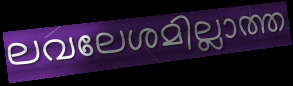
ലവലേശമില്ലാത്ത